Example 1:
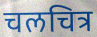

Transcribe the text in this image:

चलचित्र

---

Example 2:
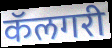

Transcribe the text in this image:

कॅलगरी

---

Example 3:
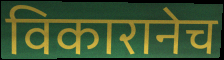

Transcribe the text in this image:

विकारानेच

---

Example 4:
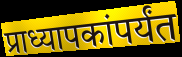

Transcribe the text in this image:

प्राध्यापकांपर्यंत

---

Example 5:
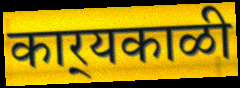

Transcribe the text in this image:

कार्यकाळी